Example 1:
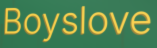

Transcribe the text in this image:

Boyslove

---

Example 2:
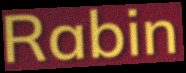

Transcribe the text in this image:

Rabin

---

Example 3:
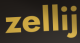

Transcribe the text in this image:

zellij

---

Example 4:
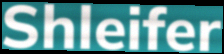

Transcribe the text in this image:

Shleifer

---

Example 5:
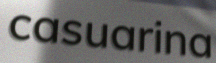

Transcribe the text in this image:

casuarina